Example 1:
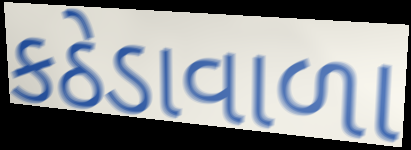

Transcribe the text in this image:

કઠેડાવાળા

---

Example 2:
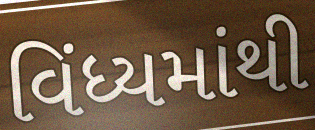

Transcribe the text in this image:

વિંધ્યમાંથી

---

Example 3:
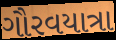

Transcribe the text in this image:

ગૌરવયાત્રા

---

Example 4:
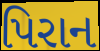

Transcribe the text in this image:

પિરાન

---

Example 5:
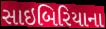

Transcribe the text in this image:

સાઇબિરિયાના